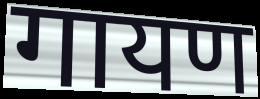
गायण